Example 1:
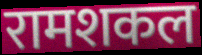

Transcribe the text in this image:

रामशकल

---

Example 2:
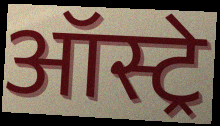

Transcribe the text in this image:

ऑस्ट्रे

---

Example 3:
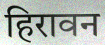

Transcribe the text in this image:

हिरावन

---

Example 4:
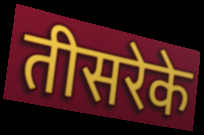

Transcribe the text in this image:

तीसरेके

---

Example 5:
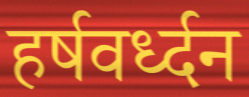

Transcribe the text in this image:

हर्षवर्ध्दन